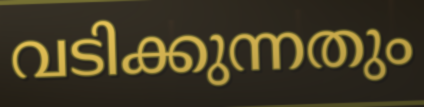
വടിക്കുന്നതും